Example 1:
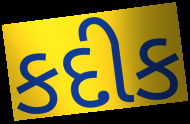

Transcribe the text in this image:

કદીક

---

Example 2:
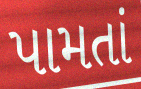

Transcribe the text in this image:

પામતાં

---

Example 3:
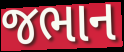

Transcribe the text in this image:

જભાન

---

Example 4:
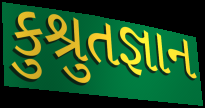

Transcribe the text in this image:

કુશ્રુતજ્ઞાન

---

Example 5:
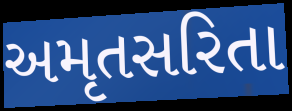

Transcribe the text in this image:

અમૃતસરિતા